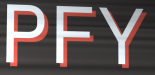
PFY